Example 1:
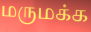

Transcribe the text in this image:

மருமக்க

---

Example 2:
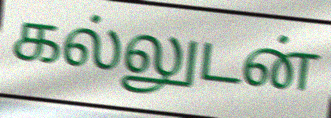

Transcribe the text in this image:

கல்லுடன்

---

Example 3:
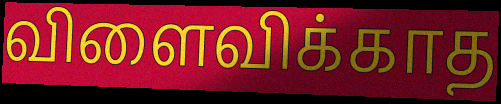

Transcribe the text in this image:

விளைவிக்காத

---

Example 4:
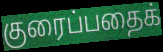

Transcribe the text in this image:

குரைப்பதைக்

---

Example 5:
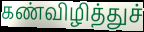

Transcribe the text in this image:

கண்விழித்துச்